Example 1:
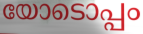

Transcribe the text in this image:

യോടൊപ്പം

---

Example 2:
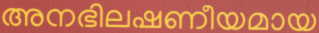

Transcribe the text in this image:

അനഭിലഷണീയമായ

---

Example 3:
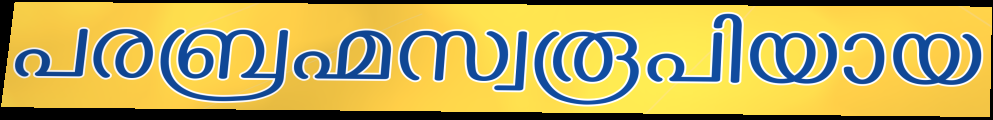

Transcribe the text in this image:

പരബ്രഹ്മസ്വരൂപിയായ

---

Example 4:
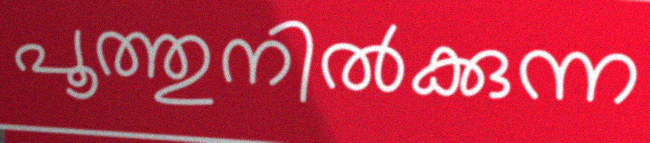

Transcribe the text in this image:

പൂത്തുനിൽക്കുന്ന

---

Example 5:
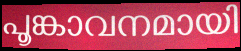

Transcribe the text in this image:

പൂങ്കാവനമായി